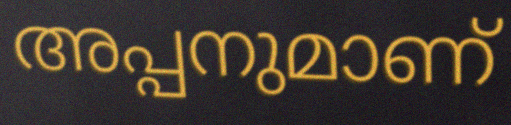
അപ്പനുമാണ്